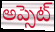
అప్సెట్